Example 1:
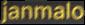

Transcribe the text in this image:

janmalo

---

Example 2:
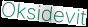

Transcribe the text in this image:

Oksidevit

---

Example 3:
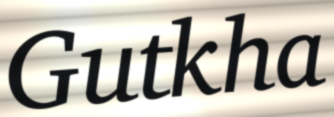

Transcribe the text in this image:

Gutkha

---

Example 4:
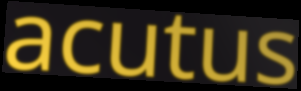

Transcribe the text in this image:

acutus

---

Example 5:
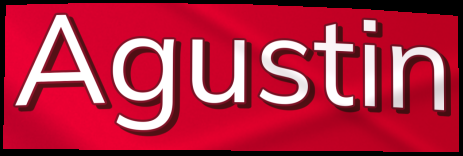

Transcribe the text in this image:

Agustin